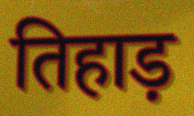
तिहाड़